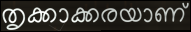
തൃക്കാക്കരയാണ്